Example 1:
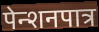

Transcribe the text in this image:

पेन्शनपात्र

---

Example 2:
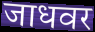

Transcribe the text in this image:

जाधवर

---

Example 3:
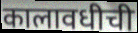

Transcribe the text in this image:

कालावधीची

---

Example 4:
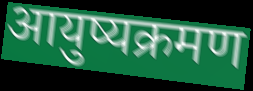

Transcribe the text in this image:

आयुष्यक्रमण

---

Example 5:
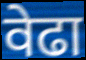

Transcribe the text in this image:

वेढा